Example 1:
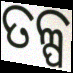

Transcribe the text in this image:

ତଳ୍ପ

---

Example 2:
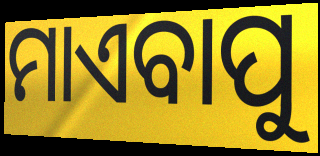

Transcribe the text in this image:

ମାଏବାପୁ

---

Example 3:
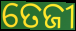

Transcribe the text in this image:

ତେଜୀ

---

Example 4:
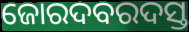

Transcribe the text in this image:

ଜୋରଦବରଦସ୍ତ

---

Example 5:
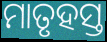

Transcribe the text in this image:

ମାତୃହସ୍ତ